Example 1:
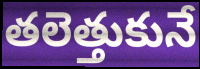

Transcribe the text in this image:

తలెత్తుకునే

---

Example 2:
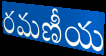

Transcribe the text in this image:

రమణీయ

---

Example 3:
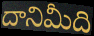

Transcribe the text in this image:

దానిమీది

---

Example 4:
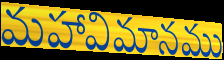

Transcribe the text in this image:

మహావిమానము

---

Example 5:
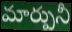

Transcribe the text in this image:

మార్పునీ